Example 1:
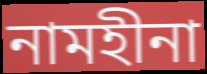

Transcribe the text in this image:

নামহীনা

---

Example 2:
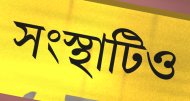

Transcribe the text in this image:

সংস্থাটিও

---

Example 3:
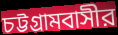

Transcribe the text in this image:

চট্টগ্রামবাসীর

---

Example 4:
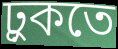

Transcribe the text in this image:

ঢ়ুকতে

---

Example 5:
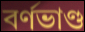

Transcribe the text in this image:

বর্ণভাণ্ড